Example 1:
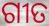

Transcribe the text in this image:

ଗୀତ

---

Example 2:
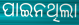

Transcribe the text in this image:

ପାଇନଥିଲା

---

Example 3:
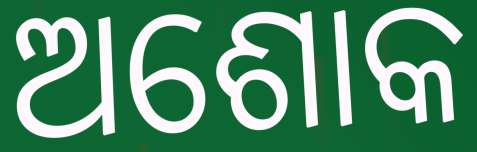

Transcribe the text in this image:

ଅଶୋକ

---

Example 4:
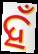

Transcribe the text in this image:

ହଁ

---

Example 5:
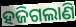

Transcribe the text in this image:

ହଜିଗଲାଣି